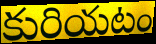
కురియటం